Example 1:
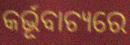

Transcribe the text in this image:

କର୍ଭୂବାଚ୍ୟରେ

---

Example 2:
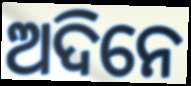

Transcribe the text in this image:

ଅଦିନେ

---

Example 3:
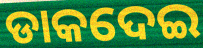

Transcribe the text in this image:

ଡାକଦେଇ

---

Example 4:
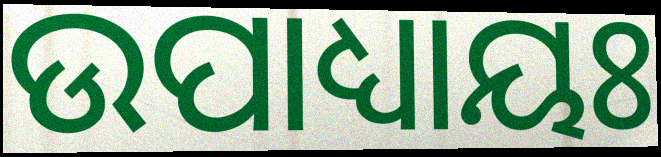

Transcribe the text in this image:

ଉପାଧ୍ୟାୟଃ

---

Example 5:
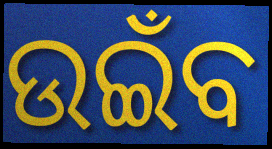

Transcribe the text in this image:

ଉଇଁବ